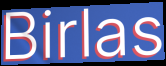
Birlas